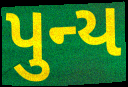
પુન્ય